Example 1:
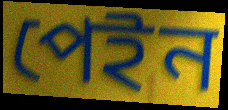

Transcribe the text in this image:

পেইন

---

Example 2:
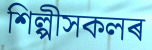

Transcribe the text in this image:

শিল্পীসকলৰ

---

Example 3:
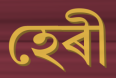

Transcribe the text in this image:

হেৰী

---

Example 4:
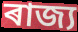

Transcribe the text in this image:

ৰাজ্য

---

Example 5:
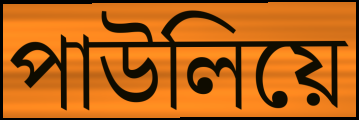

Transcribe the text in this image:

পাউলিয়ে